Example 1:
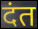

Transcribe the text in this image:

दंत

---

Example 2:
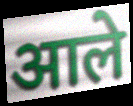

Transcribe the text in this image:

आले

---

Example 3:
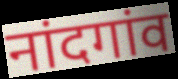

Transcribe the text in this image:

नांदगांव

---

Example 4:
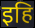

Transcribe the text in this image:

इहि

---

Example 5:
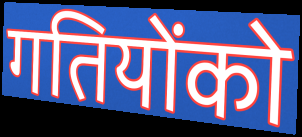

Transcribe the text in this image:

गतियोंको